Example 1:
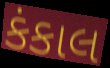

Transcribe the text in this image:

કંકાલ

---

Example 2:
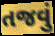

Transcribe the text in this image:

તજવું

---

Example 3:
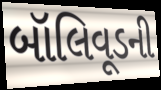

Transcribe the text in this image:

બૉલિવૂડની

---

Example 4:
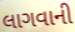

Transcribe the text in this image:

લાગવાની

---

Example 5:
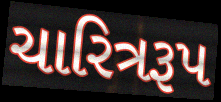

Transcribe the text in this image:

ચારિત્રરૂપ